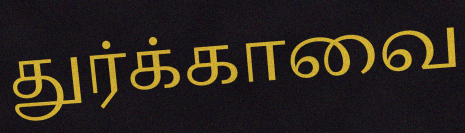
துர்க்காவை